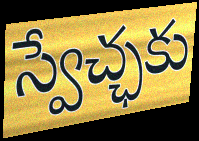
స్వేచ్ఛకు